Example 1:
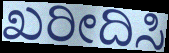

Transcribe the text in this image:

ಖರೀದಿಸಿ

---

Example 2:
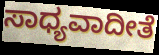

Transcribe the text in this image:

ಸಾಧ್ಯವಾದೀತೆ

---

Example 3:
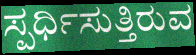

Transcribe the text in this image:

ಸ್ಪರ್ಧಿಸುತ್ತಿರುವ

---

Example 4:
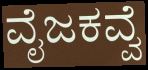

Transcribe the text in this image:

ವೈಜಕವ್ವೆ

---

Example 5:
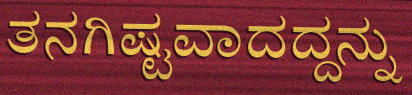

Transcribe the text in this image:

ತನಗಿಷ್ಟವಾದದ್ದನ್ನು